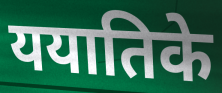
ययातिके